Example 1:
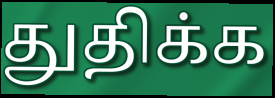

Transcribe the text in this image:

துதிக்க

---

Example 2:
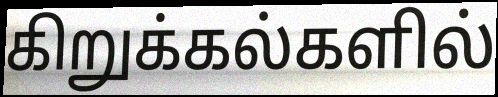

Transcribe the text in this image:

கிறுக்கல்களில்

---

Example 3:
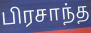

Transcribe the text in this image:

பிரசாந்த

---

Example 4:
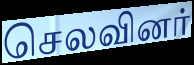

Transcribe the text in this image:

செலவினர்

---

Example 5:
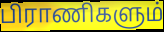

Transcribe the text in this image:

பிராணிகளும்